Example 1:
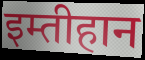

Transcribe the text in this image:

इम्तीहान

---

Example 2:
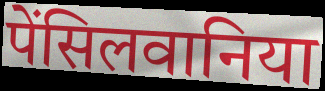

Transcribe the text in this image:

पेंसिलवानिया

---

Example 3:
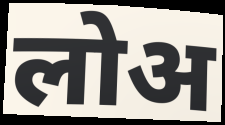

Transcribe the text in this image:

लोअ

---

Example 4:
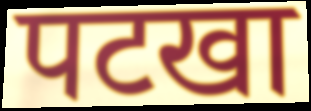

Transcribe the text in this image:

पटखा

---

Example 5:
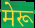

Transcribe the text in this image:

मेरू